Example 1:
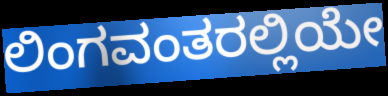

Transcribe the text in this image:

ಲಿಂಗವಂತರಲ್ಲಿಯೇ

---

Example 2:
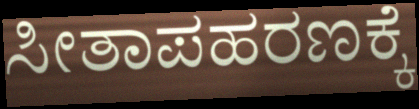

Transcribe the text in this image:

ಸೀತಾಪಹರಣಕ್ಕೆ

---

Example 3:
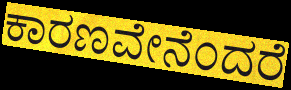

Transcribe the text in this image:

ಕಾರಣವೇನೆಂದರೆ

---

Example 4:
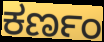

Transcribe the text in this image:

ಕರ್ಣಂ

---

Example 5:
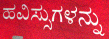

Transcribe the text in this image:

ಹವಿಸ್ಸುಗಳನ್ನು